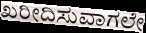
ಖರೀದಿಸುವಾಗಲೇ